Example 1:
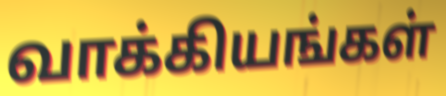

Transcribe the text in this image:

வாக்கியங்கள்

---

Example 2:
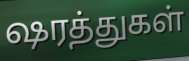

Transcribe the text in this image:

ஷரத்துகள்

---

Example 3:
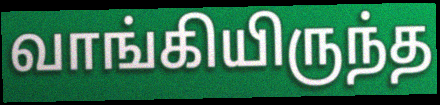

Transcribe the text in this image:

வாங்கியிருந்த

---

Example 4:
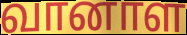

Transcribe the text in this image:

வானாள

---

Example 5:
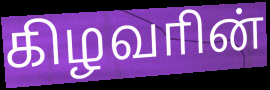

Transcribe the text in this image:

கிழவரின்